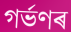
গৰ্ভণৰ